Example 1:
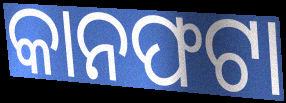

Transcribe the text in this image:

କାନଫଟା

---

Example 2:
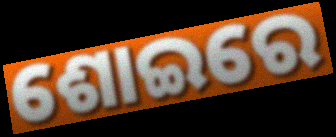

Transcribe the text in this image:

ଶୋଇରେ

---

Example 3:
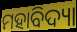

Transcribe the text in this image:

ମହାବିଦ୍ୟା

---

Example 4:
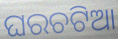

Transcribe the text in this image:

ଘରଚଟିଆ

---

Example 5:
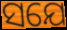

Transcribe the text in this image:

ସଯେ